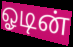
ஓடின்